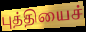
புத்தியைச்